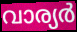
വാര്യർ